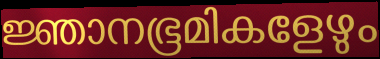
ജ്ഞാനഭൂമികളേഴും